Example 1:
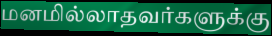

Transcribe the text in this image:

மனமில்லாதவர்களுக்கு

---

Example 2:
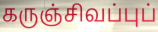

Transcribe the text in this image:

கருஞ்சிவப்புப்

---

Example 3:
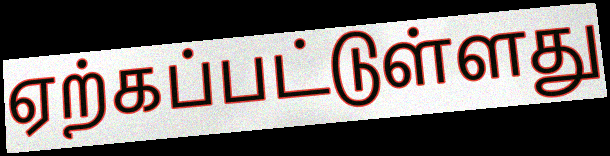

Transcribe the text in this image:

ஏற்கப்பட்டுள்ளது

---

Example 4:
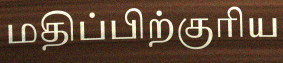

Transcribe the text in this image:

மதிப்பிற்குரிய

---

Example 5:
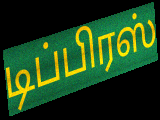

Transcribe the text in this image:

டிப்பிரஸ்